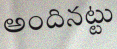
అందినట్టు